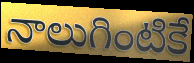
నాలుగింటికే